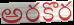
అరకొర